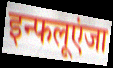
इन्फलूएंजा